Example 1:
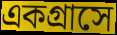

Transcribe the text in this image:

একগ্রাসে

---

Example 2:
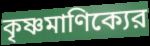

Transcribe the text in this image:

কৃষ্ণমাণিক্যের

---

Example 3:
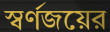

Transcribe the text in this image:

স্বর্ণজয়ের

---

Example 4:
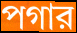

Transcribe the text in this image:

পগার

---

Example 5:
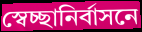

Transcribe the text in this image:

স্বেচ্ছানির্বাসনে